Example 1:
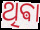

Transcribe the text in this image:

ଥିଵା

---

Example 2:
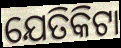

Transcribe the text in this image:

ଯେତିକିଟା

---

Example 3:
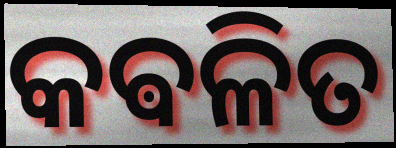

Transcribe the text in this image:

କଵଳିତ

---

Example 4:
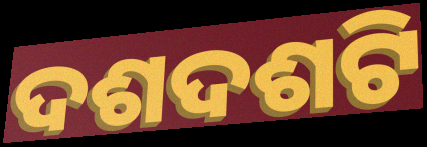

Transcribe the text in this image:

ଦଶଦଶଟି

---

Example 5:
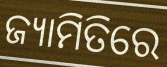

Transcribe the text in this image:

ଜ୍ୟାମିତିରେ